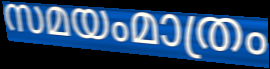
സമയംമാത്രം